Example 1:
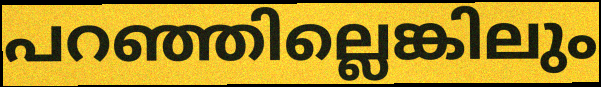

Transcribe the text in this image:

പറഞ്ഞില്ലെങ്കിലും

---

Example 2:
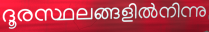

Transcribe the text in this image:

ദൂരസ്ഥലങ്ങളിൽനിന്നു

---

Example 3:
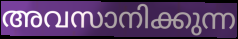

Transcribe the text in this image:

അവസാനിക്കുന്ന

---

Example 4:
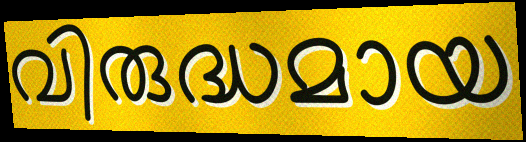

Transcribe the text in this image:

വിരുദ്ധമായ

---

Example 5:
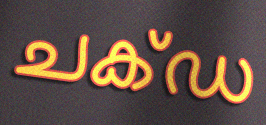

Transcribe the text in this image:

ചക്ഡ